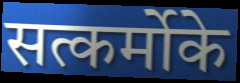
सत्कर्मोके